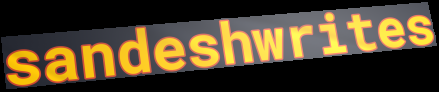
sandeshwrites